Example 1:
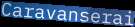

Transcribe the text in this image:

Caravanserai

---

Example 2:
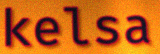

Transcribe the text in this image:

kelsa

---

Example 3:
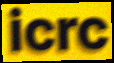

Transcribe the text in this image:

icrc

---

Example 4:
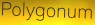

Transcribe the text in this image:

Polygonum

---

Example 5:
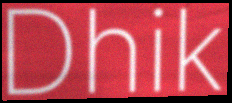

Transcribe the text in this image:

Dhik